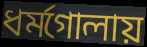
ধর্মগোলায়